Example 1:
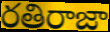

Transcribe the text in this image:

రతిరాజా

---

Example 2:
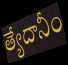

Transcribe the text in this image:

త్యేదానీం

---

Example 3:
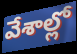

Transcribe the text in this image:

వేశాల్లో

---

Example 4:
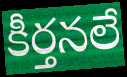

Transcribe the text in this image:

కీర్తనలే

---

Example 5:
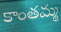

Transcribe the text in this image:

కాంతమ్మ